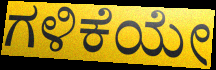
ಗಳಿಕೆಯೇ